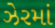
ઝેરમાં